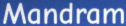
Mandram